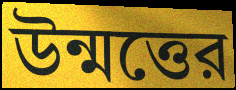
উন্মত্তের